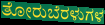
ತೋರುಬೆರಳುಗಳ